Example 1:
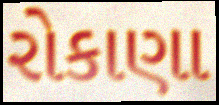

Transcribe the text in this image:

રોકાણા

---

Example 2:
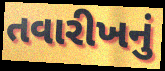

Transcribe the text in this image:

તવારીખનું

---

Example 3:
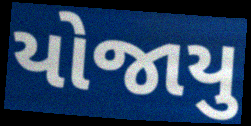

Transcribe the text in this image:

યોજાયુ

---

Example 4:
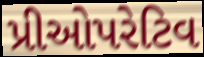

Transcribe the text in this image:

પ્રીઓપરેટિવ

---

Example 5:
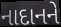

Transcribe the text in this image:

નાદાનને